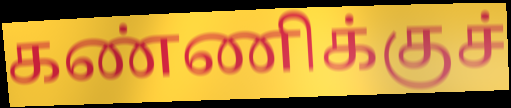
கண்ணிக்குச்